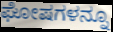
ಘೋಷಗಳನ್ನೂ